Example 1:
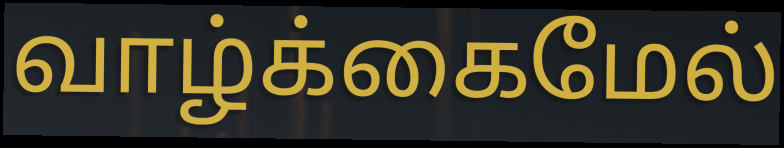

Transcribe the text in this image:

வாழ்க்கைமேல்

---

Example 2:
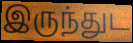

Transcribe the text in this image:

இருந்துட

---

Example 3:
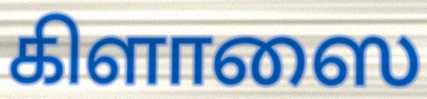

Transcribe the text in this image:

கிளாஸை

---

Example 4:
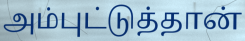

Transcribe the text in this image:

அம்புட்டுத்தான்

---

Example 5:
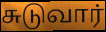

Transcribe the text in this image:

சுடுவார்